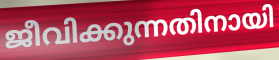
ജീവിക്കുന്നതിനായി